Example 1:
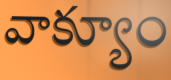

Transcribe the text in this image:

వాక్యూం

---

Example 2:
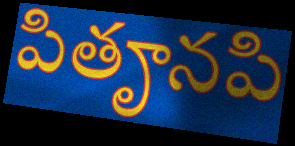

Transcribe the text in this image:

పితౄనపి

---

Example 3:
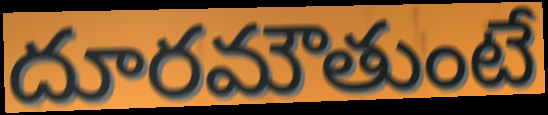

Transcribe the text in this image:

దూరమౌతుంటే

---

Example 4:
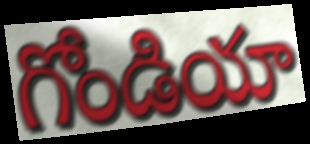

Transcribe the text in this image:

గోండియా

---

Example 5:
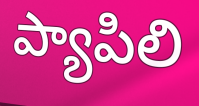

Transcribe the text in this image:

ప్యాపిలి